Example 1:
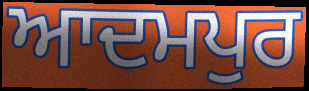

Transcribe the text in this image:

ਆਦਮਪੁਰ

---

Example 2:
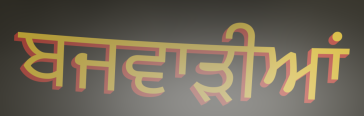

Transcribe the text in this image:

ਬਜਵਾੜੀਆਂ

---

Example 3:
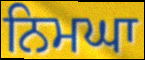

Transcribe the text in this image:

ਨਿਮਘਾ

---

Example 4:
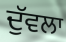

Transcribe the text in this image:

ਦੁੱਵਲਾ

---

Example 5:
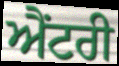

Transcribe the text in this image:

ਐਂਟਰੀ